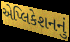
એપ્લિકેશનનું